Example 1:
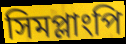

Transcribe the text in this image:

সিমপ্লাংপি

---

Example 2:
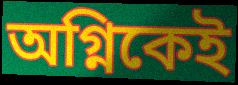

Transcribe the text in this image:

অগ্নিকেই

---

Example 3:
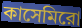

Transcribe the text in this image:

কাসেমিরো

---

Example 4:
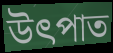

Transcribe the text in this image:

উৎপাত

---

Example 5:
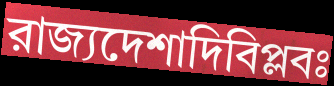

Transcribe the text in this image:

রাজ্যদেশাদিবিপ্লবঃ